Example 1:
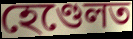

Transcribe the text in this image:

হেণ্ডেলত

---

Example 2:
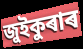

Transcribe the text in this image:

জুইকুৰাৰ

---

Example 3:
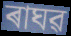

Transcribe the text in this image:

ৰাঘৱ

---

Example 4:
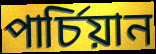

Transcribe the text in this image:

পাৰ্চিয়ান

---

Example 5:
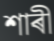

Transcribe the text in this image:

শাৰী